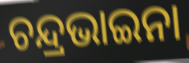
ଚନ୍ଦ୍ରଭାଇନା